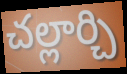
చల్లార్చి